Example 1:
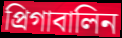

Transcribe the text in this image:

প্রিগাবালিন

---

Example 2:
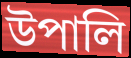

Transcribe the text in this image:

উপালি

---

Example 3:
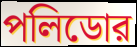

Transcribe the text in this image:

পলিডোর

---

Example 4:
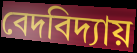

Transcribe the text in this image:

বেদবিদ্যায়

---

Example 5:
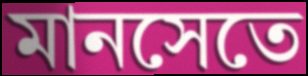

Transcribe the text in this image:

মানসেতে